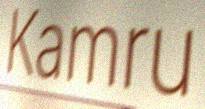
Kamru